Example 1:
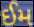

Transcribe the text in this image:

ઈમ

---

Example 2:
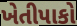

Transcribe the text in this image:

ખેતીપાકો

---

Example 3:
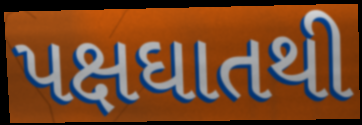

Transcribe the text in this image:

પક્ષઘાતથી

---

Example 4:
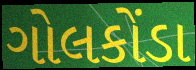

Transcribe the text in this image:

ગોલકોંડા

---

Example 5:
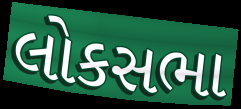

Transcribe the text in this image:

લોકસભા